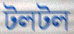
টলটল